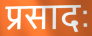
प्रसादः